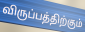
விருப்பத்திற்கும்